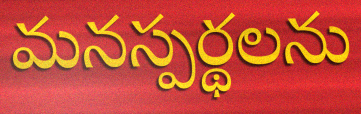
మనస్పర్థలను